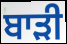
ਬਾੜੀ